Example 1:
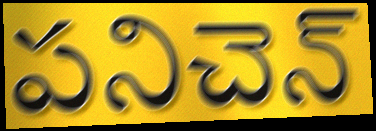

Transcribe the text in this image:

పనిచెన్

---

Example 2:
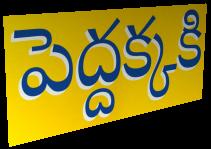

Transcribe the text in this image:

పెద్దక్కకి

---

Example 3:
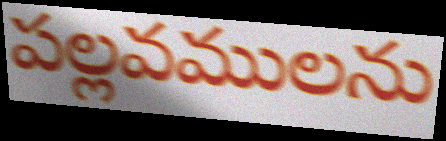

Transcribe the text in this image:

పల్లవములను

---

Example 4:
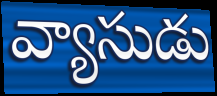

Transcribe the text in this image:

వ్యాసుడు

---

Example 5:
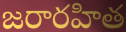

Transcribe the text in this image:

జరారహిత